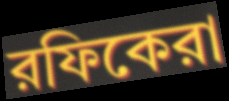
রফিকেরা